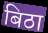
बिठा